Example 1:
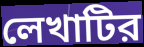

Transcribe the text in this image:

লেখাটির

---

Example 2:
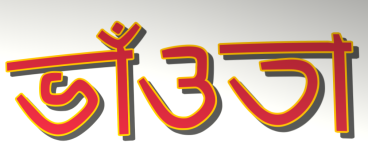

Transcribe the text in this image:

ভাঁওতা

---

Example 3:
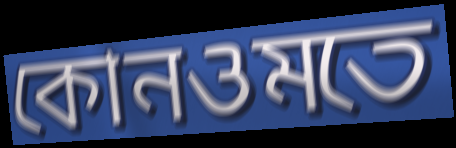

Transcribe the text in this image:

কোনওমতে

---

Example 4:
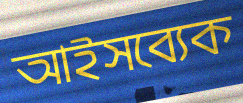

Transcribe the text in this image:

আইসব্যেক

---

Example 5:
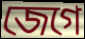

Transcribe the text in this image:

জেগে